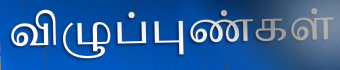
விழுப்புண்கள்